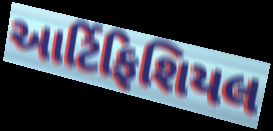
આર્ટિફિશિયલ